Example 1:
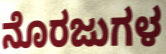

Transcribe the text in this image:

ನೊರಜುಗಳ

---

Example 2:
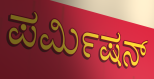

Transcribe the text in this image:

ಪರ್ಮಿಷನ್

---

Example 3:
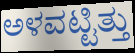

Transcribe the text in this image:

ಅಳವಟ್ಟಿತ್ತು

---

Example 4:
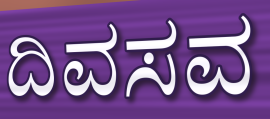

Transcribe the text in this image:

ದಿವಸವ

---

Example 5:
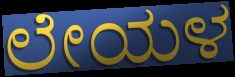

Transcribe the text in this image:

ಲೇಯಳ